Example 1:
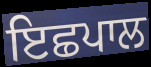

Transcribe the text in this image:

ਇਛਪਾਲ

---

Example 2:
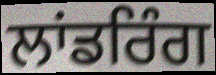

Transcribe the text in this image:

ਲਾਂਡਰਿੰਗ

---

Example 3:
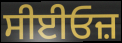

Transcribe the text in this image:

ਸੀਈਓਜ਼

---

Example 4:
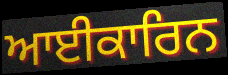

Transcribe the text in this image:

ਆਈਕਾਰਿਨ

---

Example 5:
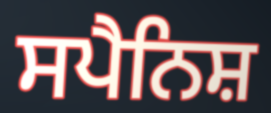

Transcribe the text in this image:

ਸਪੈਨਿਸ਼